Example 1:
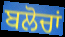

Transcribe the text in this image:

ਬਲੋਚਾਂ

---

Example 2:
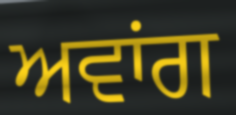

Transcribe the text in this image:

ਅਵਾਂਗ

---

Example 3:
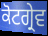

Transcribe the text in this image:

ਕੋਟਗ੍ਰੇਵ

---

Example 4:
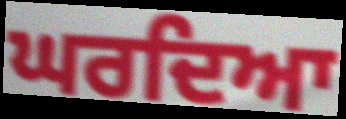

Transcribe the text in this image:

ਘਰਦਿਆ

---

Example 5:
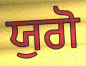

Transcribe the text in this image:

ਯੁਗੋ